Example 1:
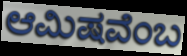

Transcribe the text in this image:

ಆಮಿಷವೆಂಬ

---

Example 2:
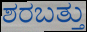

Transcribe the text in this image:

ಶರಬತ್ತು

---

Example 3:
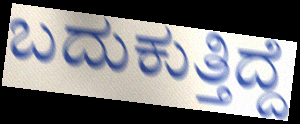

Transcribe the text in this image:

ಬದುಕುತ್ತಿದ್ದೆ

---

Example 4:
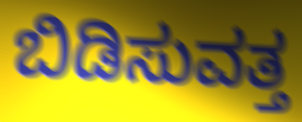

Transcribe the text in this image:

ಬಿಡಿಸುವತ್ತ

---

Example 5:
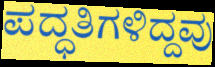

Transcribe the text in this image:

ಪದ್ಧತಿಗಳಿದ್ದವು